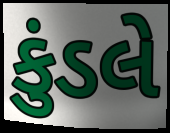
કુંડલે